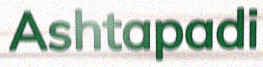
Ashtapadi